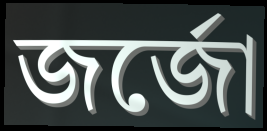
জর্জো